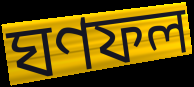
ঘণফল